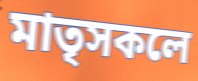
মাতৃসকলে